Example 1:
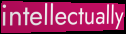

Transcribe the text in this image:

intellectually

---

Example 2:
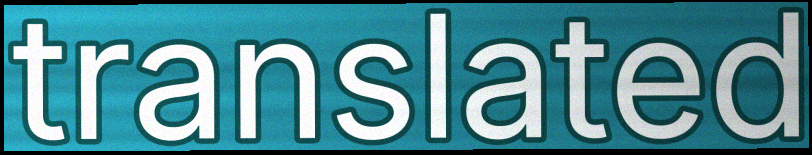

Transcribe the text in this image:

translated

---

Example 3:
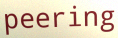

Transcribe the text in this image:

peering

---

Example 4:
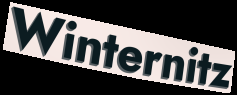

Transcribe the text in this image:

Winternitz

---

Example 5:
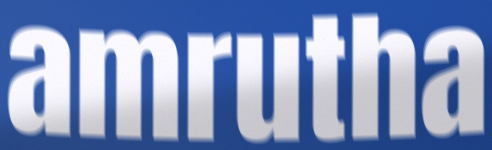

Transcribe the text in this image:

amrutha